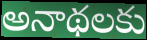
అనాథలకు